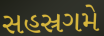
સહસ્રગમે